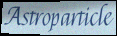
Astroparticle